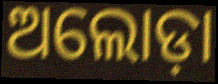
ଅଲୋଡ଼ା